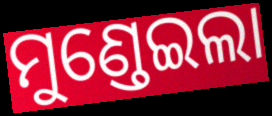
ମୁଣ୍ଡେଇଲା